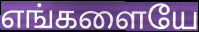
எங்களையே